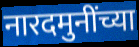
नारदमुनींच्या